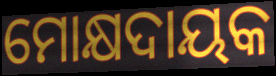
ମୋକ୍ଷଦାୟକ